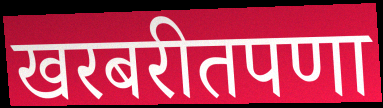
खरबरीतपणा